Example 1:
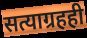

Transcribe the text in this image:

सत्याग्रहही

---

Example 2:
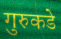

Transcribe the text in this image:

गुरुकडे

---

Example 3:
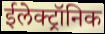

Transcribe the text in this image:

ईलेक्ट्रॉनिक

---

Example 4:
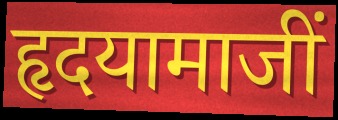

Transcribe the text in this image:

हृदयामाजीं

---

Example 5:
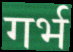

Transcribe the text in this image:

गर्भ